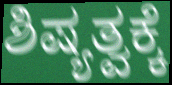
ಶಿಷ್ಯತ್ವಕ್ಕೆ